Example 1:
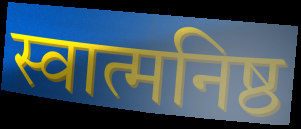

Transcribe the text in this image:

स्वात्मनिष्ठ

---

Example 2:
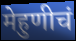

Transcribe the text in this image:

मेहुणीचं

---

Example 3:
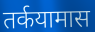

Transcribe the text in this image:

तर्कयामास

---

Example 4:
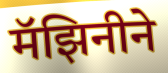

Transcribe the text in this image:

मॅझिनीने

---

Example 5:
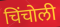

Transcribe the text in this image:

चिंचोली